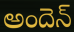
అందెన్